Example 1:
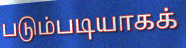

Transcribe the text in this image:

படும்படியாகக்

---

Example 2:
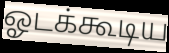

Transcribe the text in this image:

ஓடக்கூடிய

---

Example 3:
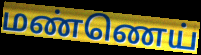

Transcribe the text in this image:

மண்ணெய்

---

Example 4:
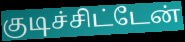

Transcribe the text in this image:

குடிச்சிட்டேன்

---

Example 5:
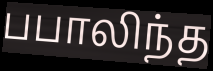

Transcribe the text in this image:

பபாலிந்த